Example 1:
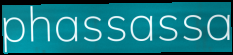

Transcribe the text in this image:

phassassa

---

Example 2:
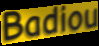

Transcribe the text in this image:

Badiou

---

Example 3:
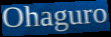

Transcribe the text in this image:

Ohaguro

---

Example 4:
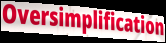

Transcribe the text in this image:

Oversimplification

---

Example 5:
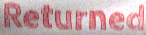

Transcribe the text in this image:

Returned